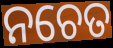
ନଚେତ